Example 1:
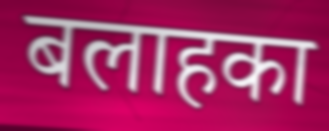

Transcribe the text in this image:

बलाहका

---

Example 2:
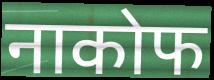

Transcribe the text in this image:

नाकोफ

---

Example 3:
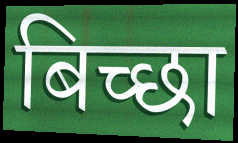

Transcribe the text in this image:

बिच्छा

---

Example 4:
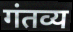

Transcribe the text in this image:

गंतव्य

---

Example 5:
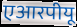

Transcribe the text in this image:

एआरपीयू